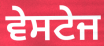
ਵੇਸਟੇਜ